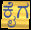
ಕೈಗ